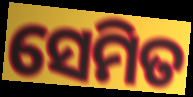
ସେମିତ